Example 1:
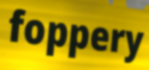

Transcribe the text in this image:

foppery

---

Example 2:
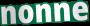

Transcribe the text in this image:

nonne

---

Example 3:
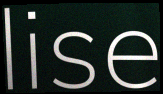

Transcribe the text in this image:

lise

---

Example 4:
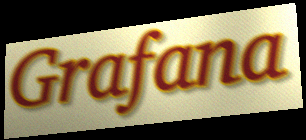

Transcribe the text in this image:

Grafana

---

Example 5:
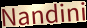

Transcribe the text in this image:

Nandini